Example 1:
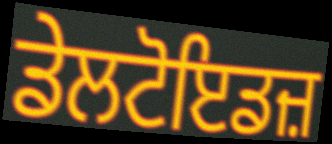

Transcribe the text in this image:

ਡੇਲਟੋਇਡਜ਼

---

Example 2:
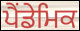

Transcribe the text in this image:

ਪੈਂਡੇਮਿਕ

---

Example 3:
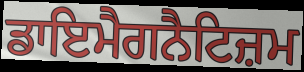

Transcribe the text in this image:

ਡਾਇਮੈਗਨੈਟਿਜ਼ਮ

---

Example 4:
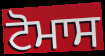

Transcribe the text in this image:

ਟੋਮਾਸ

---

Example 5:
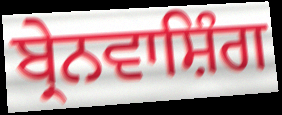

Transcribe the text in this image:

ਬ੍ਰੇਨਵਾਸ਼ਿੰਗ